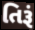
તિરૂં